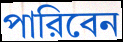
পারিবেন